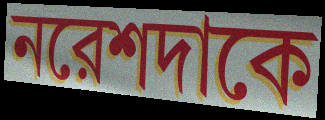
নরেশদাকে